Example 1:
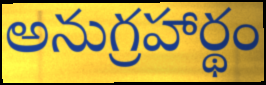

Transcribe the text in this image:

అనుగ్రహార్థం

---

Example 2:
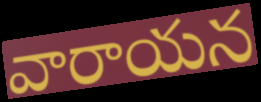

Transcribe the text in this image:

వారాయన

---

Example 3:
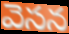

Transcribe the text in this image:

వెసన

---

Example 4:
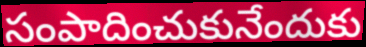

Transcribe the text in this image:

సంపాదించుకునేందుకు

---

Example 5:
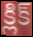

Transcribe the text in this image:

క్లిక్